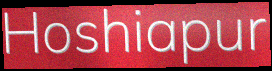
Hoshiapur